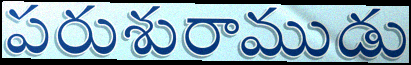
పరుశురాముడు